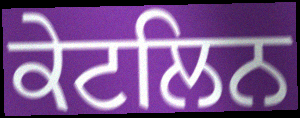
ਕੇਟਲਿਨ